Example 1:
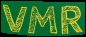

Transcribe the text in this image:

VMR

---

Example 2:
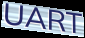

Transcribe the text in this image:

UART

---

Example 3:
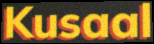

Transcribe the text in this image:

Kusaal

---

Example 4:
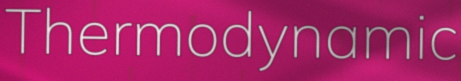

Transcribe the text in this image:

Thermodynamic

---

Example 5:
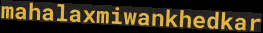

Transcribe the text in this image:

mahalaxmiwankhedkar